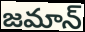
జమాన్